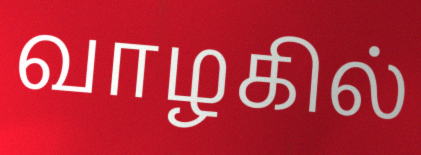
வாழகில்